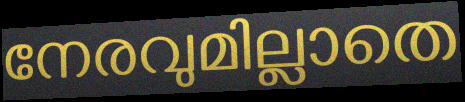
നേരവുമില്ലാതെ